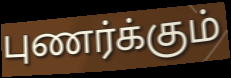
புணர்க்கும்